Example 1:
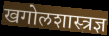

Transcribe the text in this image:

खगोलशास्त्रज्ञ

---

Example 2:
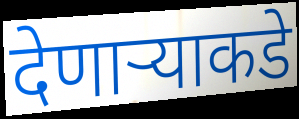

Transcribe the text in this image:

देणाऱ्याकडे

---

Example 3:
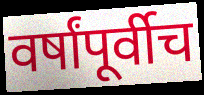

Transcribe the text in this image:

वर्षांपूर्वीच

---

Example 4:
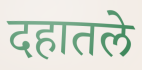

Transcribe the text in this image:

दहातले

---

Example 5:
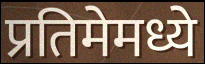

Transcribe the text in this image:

प्रतिमेमध्ये